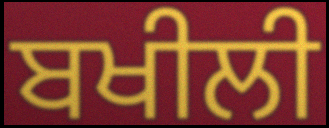
ਬਖੀਲੀ